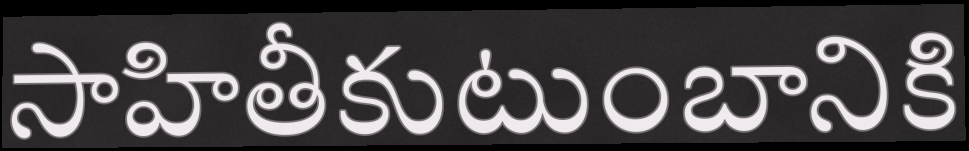
సాహితీకుటుంబానికి